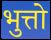
भुत्तो